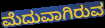
ಮೆದುವಾಗಿರುವ